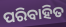
ପରିବାହିତ